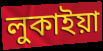
লুকাইয়া